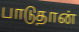
பாடுதான்